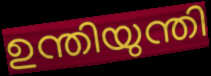
ഉന്തിയുന്തി